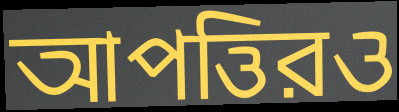
আপত্তিরও